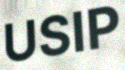
USIP